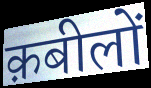
क़बीलों